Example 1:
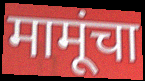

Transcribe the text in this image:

मामूंचा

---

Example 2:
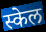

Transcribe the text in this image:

स्केल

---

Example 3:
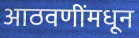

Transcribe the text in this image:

आठवणींमधून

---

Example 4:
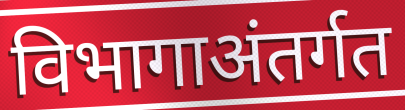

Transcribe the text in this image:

विभागाअंतर्गत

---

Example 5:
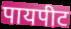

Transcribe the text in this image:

पायपीट